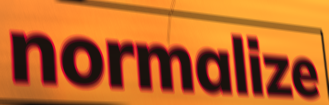
normalize